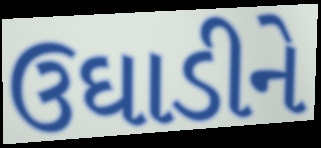
ઉઘાડીને